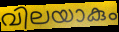
വിലയാകും